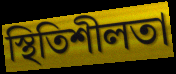
স্থিতিশীলতা